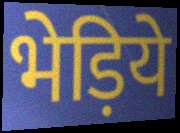
भेड़िये